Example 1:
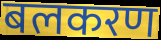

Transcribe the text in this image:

बलकरण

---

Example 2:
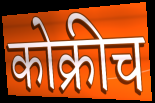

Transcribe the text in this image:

कोक्रीच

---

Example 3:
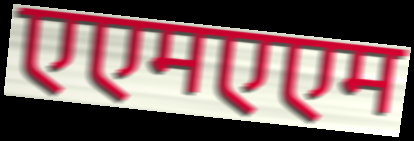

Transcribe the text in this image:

एएमएएम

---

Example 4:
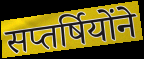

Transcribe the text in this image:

सप्तर्षियोंने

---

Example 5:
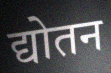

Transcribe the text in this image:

द्योतन